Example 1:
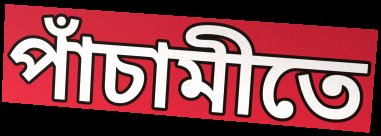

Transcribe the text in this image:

পাঁচামীতে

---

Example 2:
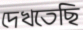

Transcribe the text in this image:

দেখতেছি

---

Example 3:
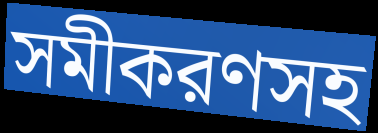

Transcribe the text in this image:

সমীকরণসহ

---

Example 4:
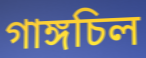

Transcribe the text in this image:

গাঙ্গচিল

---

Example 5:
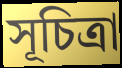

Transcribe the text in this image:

সূচিত্রা